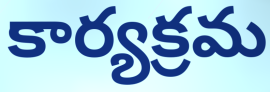
కార్యక్రమ